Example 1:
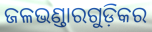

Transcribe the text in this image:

ଜଳଭଣ୍ଡାରଗୁଡ଼ିକର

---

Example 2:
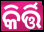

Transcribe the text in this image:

କିର୍ତ୍ତି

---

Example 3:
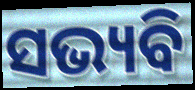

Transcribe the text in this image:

ସଭ୍ୟବି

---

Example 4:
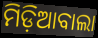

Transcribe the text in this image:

ମିଡ଼ିଆବାଲା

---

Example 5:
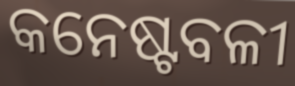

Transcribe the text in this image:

କନେଷ୍ଟବଳୀ